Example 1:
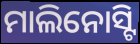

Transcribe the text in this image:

ମାଲିନୋସ୍ଟି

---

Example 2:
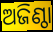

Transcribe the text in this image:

ଅଜିଣ୍ଠା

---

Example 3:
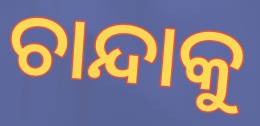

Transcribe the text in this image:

ଚାନ୍ଦାକୁ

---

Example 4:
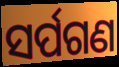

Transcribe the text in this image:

ସର୍ପଗଣ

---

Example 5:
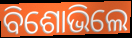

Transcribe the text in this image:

ବିଶୋଭିଲେ